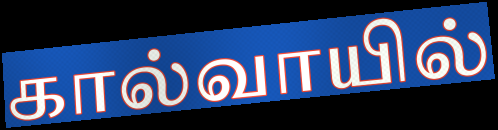
கால்வாயில்